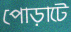
পোড়াটে